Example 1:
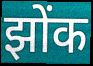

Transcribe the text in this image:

झोंक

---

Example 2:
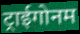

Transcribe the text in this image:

ट्राईगोनम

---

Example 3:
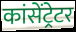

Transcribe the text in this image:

कांसेंट्रेटर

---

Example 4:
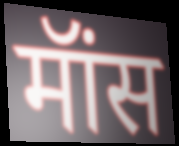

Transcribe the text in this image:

मॉंस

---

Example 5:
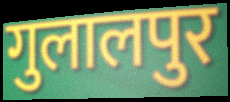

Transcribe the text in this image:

गुलालपुर